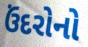
ઉંદરોનો